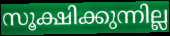
സൂക്ഷിക്കുന്നില്ല